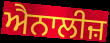
ਐਨਾਲੀਜ਼